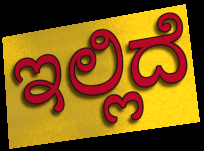
ಇಲ್ಲಿದೆ